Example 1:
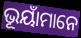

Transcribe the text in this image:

ଭୂୟାଁମାନେ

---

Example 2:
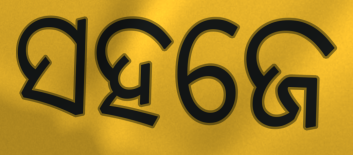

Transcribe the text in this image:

ସହଜେ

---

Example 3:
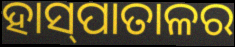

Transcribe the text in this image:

ହାସ୍‍ପାତାଳର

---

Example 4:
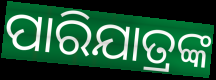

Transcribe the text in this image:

ପାରିଯାତ୍ରଙ୍କ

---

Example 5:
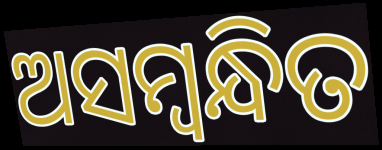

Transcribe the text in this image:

ଅସମ୍ବନ୍ଧିତ